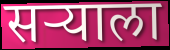
सऱ्याला